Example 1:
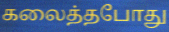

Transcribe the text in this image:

கலைத்தபோது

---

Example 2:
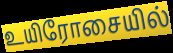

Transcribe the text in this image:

உயிரோசையில்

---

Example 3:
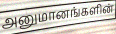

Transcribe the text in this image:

அனுமானங்களின்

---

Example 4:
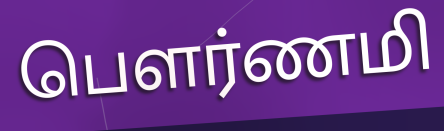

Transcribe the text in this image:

பௌர்ணமி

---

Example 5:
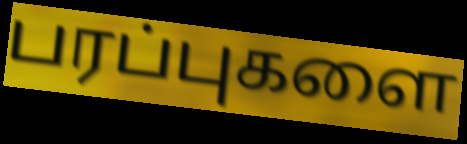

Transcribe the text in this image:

பரப்புகளை